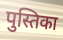
पुस्तिका